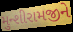
મુન્શીરામજીને